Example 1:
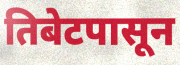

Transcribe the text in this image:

तिबेटपासून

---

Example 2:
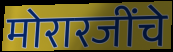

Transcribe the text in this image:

मोरारजींचे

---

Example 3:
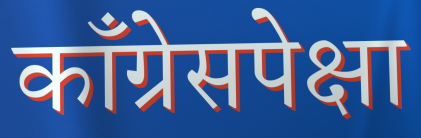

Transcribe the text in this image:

कॉंग्रेसपेक्षा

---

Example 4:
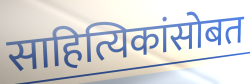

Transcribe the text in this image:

साहित्यिकांसोबत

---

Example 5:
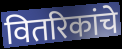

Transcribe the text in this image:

वितरिकांचे